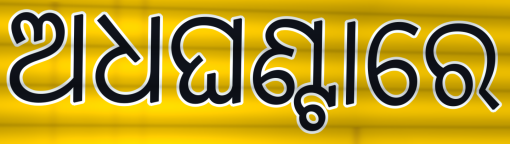
ଅଧଘଣ୍ଟାରେ